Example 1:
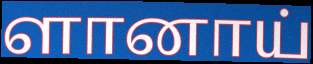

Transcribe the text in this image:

ளானாய்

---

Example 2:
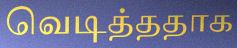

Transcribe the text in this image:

வெடித்ததாக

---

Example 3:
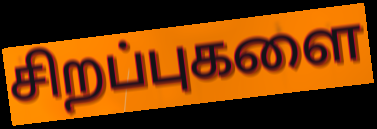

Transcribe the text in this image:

சிறப்புகளை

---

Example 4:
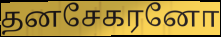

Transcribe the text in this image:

தனசேகரனோ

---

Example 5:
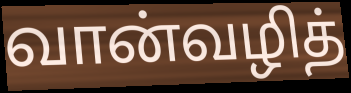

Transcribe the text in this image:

வான்வழித்